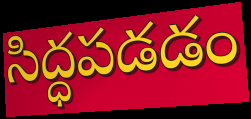
సిద్ధపడడం